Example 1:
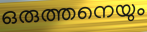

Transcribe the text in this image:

ഒരുത്തനെയും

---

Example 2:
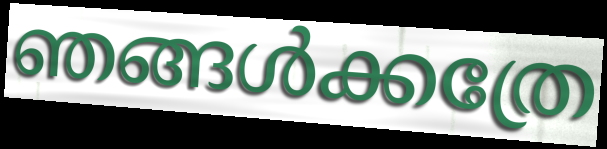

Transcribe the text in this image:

ഞങ്ങൾക്കത്രേ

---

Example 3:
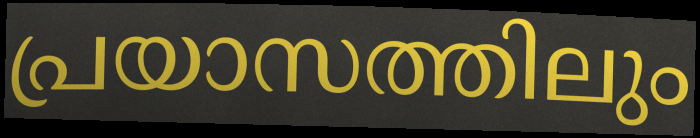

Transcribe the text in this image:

പ്രയാസത്തിലും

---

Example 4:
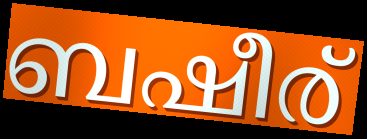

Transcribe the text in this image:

ബഷീര്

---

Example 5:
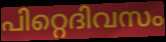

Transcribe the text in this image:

പിറ്റെദിവസം